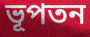
ভূপতন